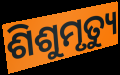
ଶିଶୁମୃତ୍ୟୁ